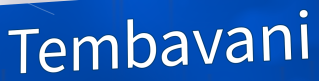
Tembavani